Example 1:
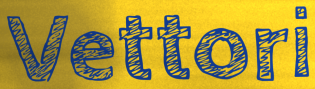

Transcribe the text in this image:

Vettori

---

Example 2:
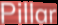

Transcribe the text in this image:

Pillar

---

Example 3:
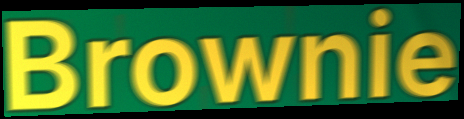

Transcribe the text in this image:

Brownie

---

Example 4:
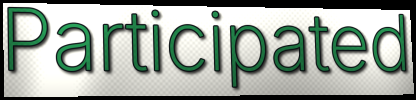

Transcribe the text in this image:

Participated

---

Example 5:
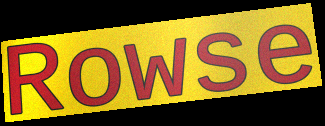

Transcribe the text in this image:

Rowse